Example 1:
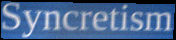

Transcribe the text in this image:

Syncretism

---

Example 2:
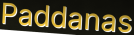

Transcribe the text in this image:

Paddanas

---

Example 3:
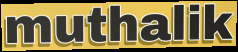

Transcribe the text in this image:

muthalik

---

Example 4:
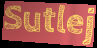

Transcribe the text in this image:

Sutlej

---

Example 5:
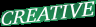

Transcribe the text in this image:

CREATIVE